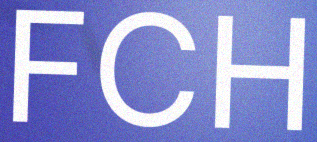
FCH